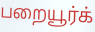
பறையூர்க்